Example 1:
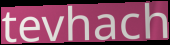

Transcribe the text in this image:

tevhach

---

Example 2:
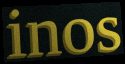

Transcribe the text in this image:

inos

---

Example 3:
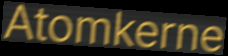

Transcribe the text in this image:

Atomkerne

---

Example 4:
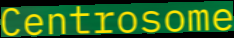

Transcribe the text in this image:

Centrosome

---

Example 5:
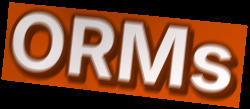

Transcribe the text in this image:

ORMs